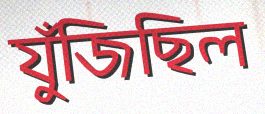
যুঁজিছিল